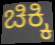
ಚಿಕ್ಕಿ